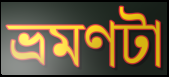
ভ্রমণটা